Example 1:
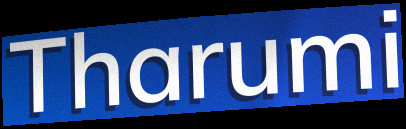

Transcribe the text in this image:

Tharumi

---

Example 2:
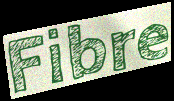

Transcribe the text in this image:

Fibre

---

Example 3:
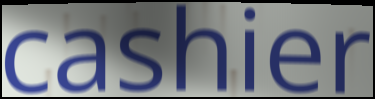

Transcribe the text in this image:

cashier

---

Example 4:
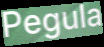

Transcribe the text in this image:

Pegula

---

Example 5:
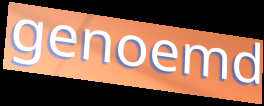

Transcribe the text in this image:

genoemd